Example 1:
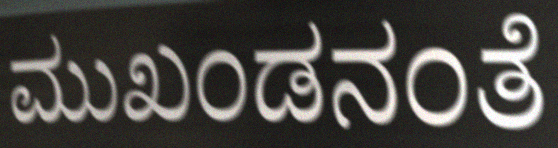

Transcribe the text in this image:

ಮುಖಂಡನಂತೆ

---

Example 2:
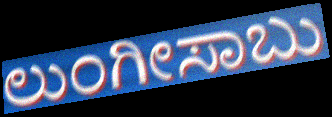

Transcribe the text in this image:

ಲುಂಗೀಸಾಬು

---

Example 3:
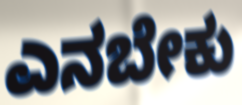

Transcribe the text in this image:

ಎನಬೇಕು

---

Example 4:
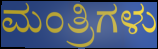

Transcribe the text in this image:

ಮಂತ್ರಿಗಳು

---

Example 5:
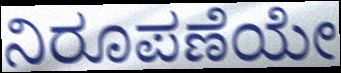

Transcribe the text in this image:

ನಿರೂಪಣೆಯೇ